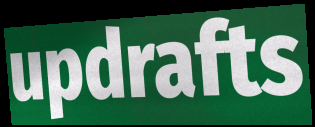
updrafts